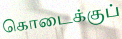
கொடைக்குப்